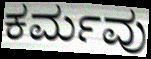
ಕರ್ಮವು